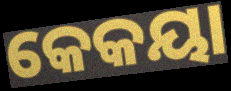
କେକୟା